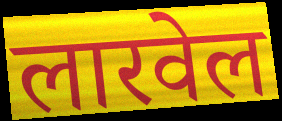
लारवेल